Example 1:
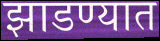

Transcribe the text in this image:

झाडण्यात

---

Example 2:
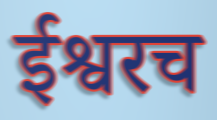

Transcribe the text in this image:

ईश्वरच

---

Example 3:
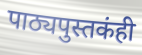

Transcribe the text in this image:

पाठ्यपुस्तकंही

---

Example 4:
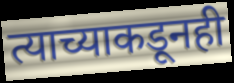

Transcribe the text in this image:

त्याच्याकडूनही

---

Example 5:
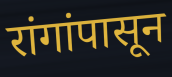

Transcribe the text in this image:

रांगांपासून